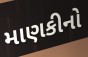
માણકીનો